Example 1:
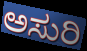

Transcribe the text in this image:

ಅಸುರಿ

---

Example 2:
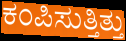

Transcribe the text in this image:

ಕಂಪಿಸುತ್ತಿತ್ತು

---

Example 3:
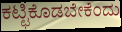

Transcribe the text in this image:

ಕಟ್ಟಿಕೊಡಬೇಕೆಂದು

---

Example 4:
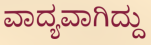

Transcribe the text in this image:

ವಾದ್ಯವಾಗಿದ್ದು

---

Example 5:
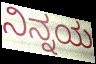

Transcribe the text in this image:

ನಿನ್ನಯ